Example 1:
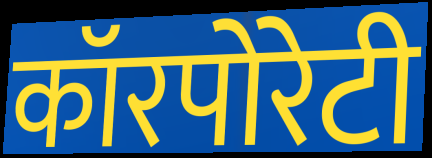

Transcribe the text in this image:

कॉरपोरेटी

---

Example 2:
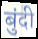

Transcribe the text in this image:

बुंदी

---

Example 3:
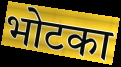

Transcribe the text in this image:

भोटका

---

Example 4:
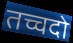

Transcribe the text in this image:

तच्चदो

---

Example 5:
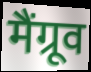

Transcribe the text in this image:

मैंग्रूव